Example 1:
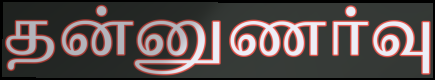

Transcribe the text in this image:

தன்னுணர்வு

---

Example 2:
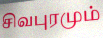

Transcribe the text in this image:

சிவபுரமும்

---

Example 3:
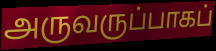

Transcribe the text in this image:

அருவருப்பாகப்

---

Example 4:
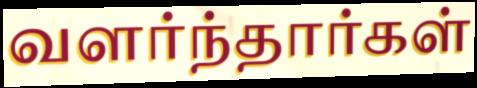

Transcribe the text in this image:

வளர்ந்தார்கள்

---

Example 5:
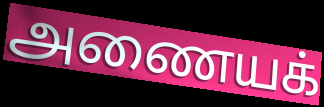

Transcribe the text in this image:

அணையக்